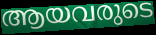
ആയവരുടെ